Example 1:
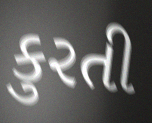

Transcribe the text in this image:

કુરતી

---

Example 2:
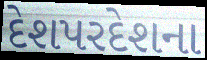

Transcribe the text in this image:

દેશપરદેશના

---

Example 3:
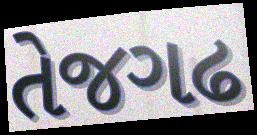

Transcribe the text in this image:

તેજગઢ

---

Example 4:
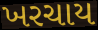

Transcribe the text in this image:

ખરચાય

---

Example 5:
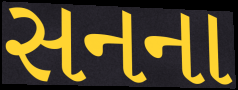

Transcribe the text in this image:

સનના